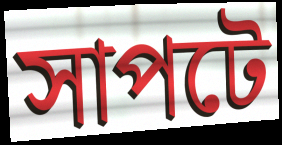
সাপটে